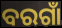
ବରଗାଁ